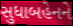
સુધાબહેનને